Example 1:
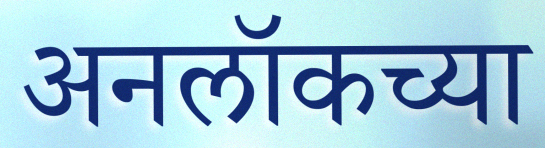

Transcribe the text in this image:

अनलॉकच्या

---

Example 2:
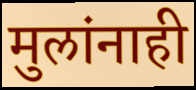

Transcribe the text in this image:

मुलांनाही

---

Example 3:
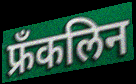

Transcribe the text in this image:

फ्रँकलिन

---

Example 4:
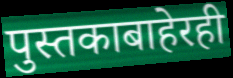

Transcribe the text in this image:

पुस्तकाबाहेरही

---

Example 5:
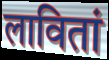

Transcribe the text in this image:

लावितां